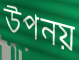
উপনয়